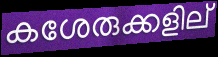
കശേരുക്കളില്